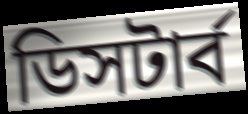
ডিসটার্ব